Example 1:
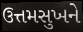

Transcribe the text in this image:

ઉત્તમસુખને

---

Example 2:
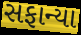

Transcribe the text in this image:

સફાન્યા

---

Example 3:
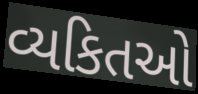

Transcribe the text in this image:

વ્યકિતઓ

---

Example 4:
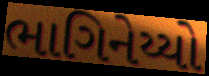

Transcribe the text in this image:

ભાગિનેય્યો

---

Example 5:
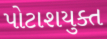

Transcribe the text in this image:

પોટાશયુક્ત